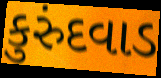
કુરુંદવાડ